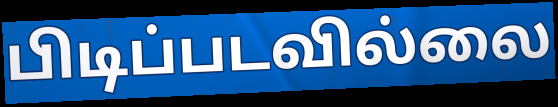
பிடிப்படவில்லை